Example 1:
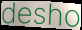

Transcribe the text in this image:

desho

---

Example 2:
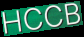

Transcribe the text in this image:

HCCB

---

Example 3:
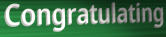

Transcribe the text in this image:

Congratulating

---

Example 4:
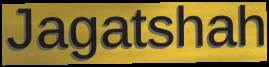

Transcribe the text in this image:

Jagatshah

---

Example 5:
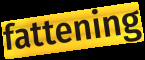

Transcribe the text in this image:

fattening